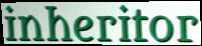
inheritor